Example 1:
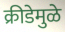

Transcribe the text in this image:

क्रीडेमुळे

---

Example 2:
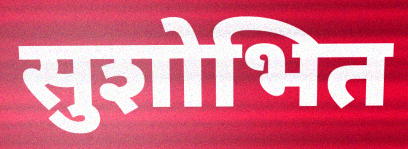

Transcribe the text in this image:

सुशोभित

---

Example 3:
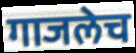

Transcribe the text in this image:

गाजलेच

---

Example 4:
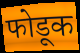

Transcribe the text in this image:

फोडूक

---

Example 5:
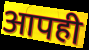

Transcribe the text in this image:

आपही